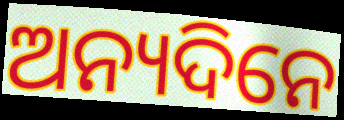
ଅନ୍ୟଦିନେ